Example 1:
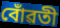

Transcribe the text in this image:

বোঁৱতী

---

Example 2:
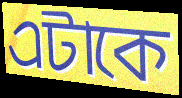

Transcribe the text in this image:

এটাকে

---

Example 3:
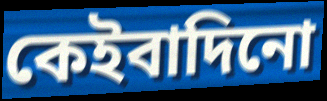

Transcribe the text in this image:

কেইবাদিনো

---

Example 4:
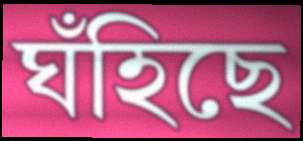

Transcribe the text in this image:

ঘঁহিছে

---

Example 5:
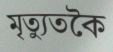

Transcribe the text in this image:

মৃত্যুতকৈ